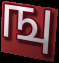
ஙு